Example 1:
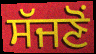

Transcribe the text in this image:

ਸੱਜਣੋਂ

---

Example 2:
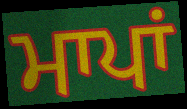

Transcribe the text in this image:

ਮਾਪਾਂ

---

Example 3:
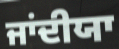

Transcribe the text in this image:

ਜਾਂਦੀਯਾ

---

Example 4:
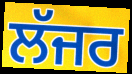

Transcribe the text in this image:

ਲੱਜਰ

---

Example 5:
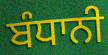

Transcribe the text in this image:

ਬੰਧਾਨੀ